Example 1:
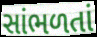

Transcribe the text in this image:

સાંભળતાં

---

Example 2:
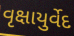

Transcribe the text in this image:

વૃક્ષાયુર્વેદ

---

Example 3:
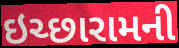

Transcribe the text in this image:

ઇચ્છારામની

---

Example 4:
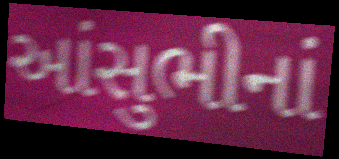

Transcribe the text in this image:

આંસુભીનાં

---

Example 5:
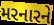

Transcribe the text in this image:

મરનારને